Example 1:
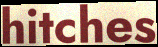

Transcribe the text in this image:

hitches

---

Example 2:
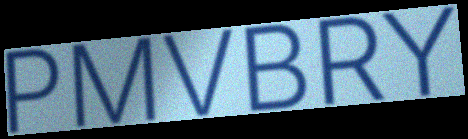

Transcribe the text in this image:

PMVBRY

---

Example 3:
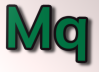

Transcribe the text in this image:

Mq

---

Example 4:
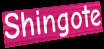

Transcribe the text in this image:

Shingote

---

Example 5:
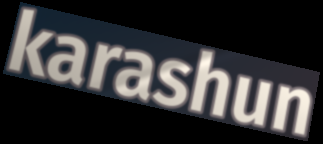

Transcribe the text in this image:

karashun